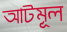
আটমূল